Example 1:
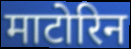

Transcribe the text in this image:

माटोरिन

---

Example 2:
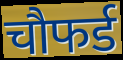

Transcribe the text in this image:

चौफर्ड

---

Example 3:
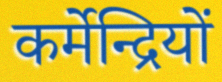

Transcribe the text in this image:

कर्मेन्द्रियों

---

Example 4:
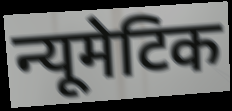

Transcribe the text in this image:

न्यूमेटिक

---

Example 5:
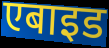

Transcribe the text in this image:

एबाइड